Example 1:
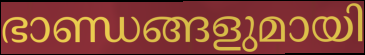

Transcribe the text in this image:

ഭാണ്ഡങ്ങളുമായി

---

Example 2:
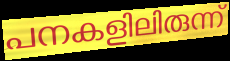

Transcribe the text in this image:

പനകളിലിരുന്ന്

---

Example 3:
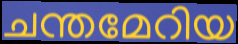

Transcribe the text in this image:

ചന്തമേറിയ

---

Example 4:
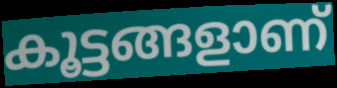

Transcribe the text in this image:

കൂട്ടങ്ങളാണ്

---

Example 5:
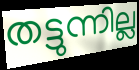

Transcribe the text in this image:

തട്ടുന്നില്ല